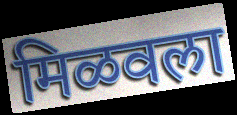
मिळवला